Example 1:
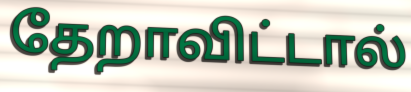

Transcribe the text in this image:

தேறாவிட்டால்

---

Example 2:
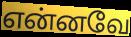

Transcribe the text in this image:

என்னவே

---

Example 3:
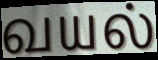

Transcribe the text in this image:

வயல்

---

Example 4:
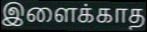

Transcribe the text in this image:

இளைக்காத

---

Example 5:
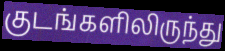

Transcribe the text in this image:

குடங்களிலிருந்து